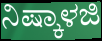
ನಿಷ್ಕಾಳಜಿ